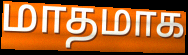
மாதமாக